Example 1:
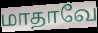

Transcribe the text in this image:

மாதாவே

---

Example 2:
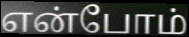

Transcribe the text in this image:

என்போம்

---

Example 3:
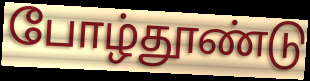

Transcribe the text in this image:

போழ்தூண்டு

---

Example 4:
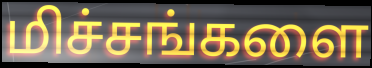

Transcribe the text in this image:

மிச்சங்களை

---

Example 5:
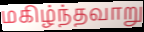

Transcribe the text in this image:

மகிழ்ந்தவாறு